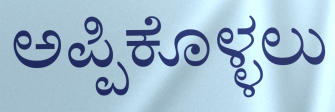
ಅಪ್ಪಿಕೊಳ್ಳಲು